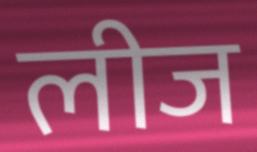
लीज